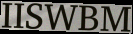
IISWBM